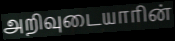
அறிவுடையாரின்